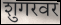
शुगरवर